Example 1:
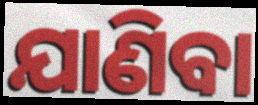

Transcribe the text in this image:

ଯାଣିବା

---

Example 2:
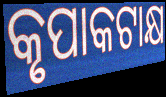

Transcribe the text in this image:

କୃପାକଟାକ୍ଷ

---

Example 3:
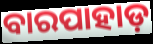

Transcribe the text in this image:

ବାରପାହାଡ଼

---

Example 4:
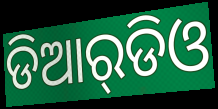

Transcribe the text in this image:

ଡିଆର୍‌ଡିଓ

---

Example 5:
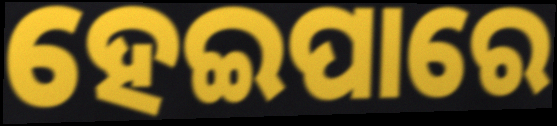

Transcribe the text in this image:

ହେଇପାରେ